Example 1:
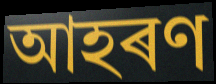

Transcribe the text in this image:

আহৰণ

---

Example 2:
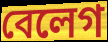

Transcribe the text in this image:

বেলেগ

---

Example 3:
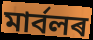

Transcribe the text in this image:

মাৰ্বলৰ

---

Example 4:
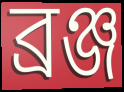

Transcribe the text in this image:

ব্ৰঞ্জ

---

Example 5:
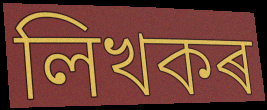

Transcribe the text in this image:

লিখকৰ